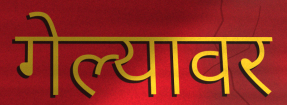
गेल्यावर